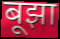
बूझा